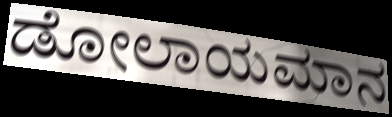
ಡೋಲಾಯಮಾನ